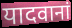
यादवानां